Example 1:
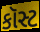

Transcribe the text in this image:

કૉસ્ટ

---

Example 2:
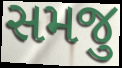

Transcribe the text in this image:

સમજુ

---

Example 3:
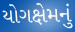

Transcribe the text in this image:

યોગક્ષેમનું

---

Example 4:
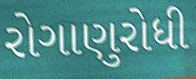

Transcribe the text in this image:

રોગાણુરોધી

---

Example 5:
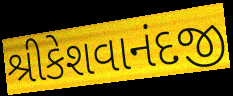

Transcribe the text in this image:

શ્રીકેશવાનંદજી